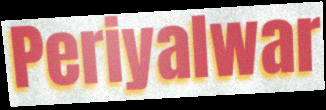
Periyalwar